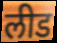
लीड